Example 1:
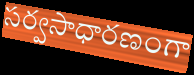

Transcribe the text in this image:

సర్వసాధారణంగా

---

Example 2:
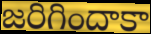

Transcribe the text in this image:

జరిగిందాకా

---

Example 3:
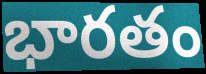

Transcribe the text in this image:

భారతం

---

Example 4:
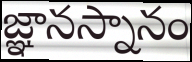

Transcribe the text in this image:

జ్ఞానస్నానం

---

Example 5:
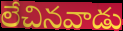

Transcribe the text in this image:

లేచినవాడు